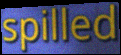
spilled